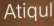
Atiqul